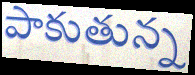
పాకుతున్న